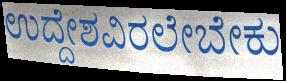
ಉದ್ದೇಶವಿರಲೇಬೇಕು